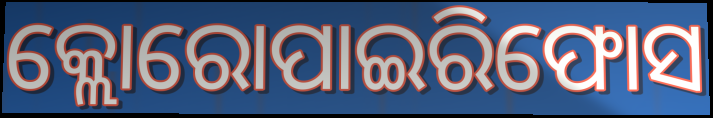
କ୍ଲୋରୋପାଇରିଫୋସ